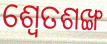
ଶ୍ୱେତଶଙ୍ଖ